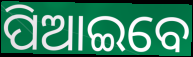
ପିଆଇବେ